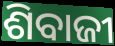
ଶିବାଜୀ